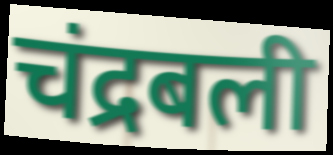
चंद्रबली